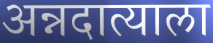
अन्नदात्याला